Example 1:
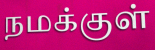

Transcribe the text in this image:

நமக்குள்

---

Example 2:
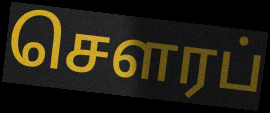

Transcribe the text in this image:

செளரப்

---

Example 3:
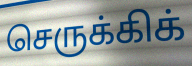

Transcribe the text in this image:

செருக்கிக்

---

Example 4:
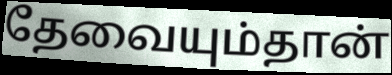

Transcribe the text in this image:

தேவையும்தான்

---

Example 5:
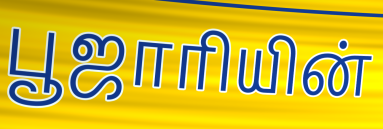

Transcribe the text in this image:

பூஜாரியின்